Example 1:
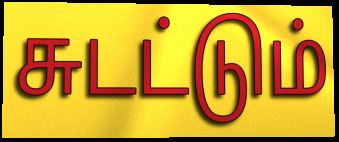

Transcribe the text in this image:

சுடட்டும்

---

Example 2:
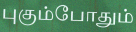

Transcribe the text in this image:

புகும்போதும்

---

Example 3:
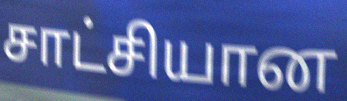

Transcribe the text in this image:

சாட்சியான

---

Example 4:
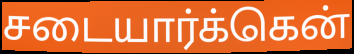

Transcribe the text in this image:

சடையார்க்கென்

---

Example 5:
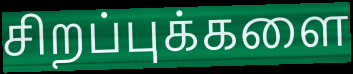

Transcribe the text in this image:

சிறப்புக்களை